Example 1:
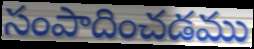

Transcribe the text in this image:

సంపాదించడము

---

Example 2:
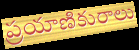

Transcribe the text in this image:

ప్రయాణికురాలు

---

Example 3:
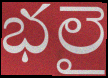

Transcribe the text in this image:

భలై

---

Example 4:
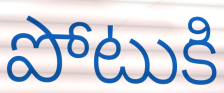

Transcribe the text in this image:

పోటుకి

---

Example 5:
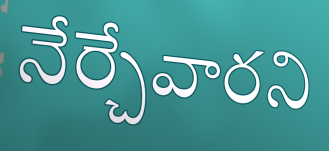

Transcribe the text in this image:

నేర్చేవారని